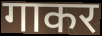
गाकर